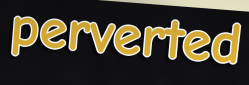
perverted